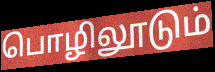
பொழிலூடும்